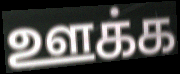
ஊக்க